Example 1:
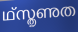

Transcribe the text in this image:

ഥ്സ്തൃണുത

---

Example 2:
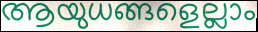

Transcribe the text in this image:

ആയുധങ്ങളെല്ലാം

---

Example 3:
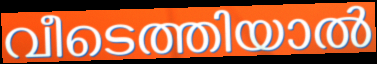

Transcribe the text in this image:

വീടെത്തിയാൽ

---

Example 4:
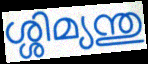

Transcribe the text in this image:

ശ്ശിമ്യന്തു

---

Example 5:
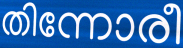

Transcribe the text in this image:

തിന്നോരീ